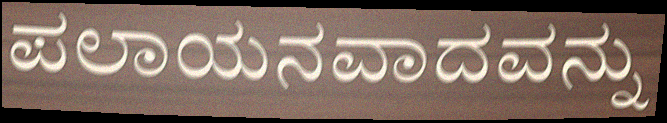
ಪಲಾಯನವಾದವನ್ನು